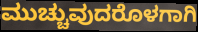
ಮುಚ್ಚುವುದರೊಳಗಾಗಿ